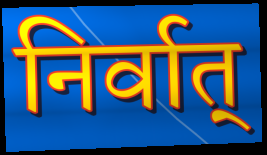
निर्वात्